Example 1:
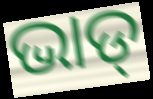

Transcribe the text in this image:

ଭାଡ୍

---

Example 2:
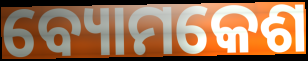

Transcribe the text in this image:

ବ୍ୟୋମକେଶ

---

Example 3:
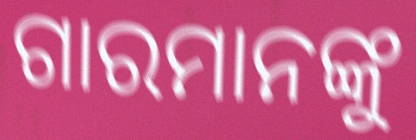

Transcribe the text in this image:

ଗାରମାନଙ୍କୁ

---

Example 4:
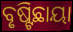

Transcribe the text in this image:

ବୃଷ୍ଟିଛାୟା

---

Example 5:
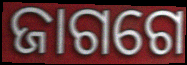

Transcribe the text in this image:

ଜାଗଗେ